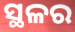
ସ୍ଥଳର